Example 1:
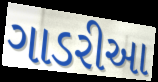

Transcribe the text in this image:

ગાડરીઆ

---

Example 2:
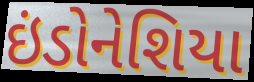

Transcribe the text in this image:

ઇંડોનેશિયા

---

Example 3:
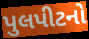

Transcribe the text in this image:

પુલપીટનો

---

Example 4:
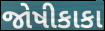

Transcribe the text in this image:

જોષીકાકા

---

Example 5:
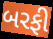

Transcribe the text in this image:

બરફી